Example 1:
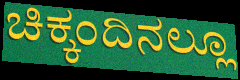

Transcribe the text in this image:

ಚಿಕ್ಕಂದಿನಲ್ಲೂ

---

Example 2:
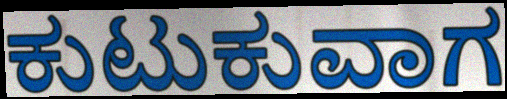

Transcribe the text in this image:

ಕುಟುಕುವಾಗ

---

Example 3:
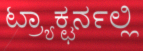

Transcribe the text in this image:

ಟ್ರ್ಯಾಕ್ಟರ್ನಲ್ಲಿ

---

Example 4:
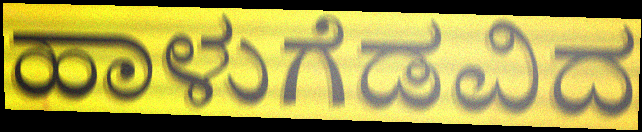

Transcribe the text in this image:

ಹಾಳುಗೆಡವಿದ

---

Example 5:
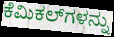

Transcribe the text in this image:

ಕೆಮಿಕಲ್‌ಗಳನ್ನು